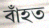
বাঁহত